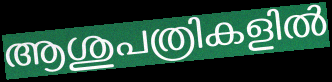
ആശുപത്രികളിൽ